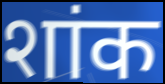
शांक